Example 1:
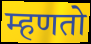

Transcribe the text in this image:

म्हणतो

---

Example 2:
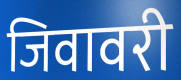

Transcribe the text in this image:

जिवावरी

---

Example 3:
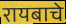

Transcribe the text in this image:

रायबाचे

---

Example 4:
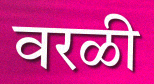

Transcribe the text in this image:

वरळी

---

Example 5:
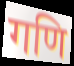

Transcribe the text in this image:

गणि